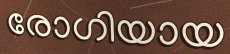
രോഗിയായ